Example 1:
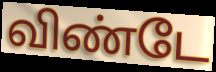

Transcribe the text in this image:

விண்டே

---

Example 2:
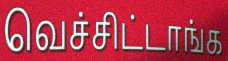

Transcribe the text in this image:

வெச்சிட்டாங்க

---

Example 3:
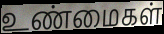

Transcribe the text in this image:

உண்மைகள்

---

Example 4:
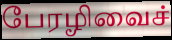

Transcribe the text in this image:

பேரழிவைச்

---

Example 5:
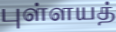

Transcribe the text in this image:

புள்ளயத்